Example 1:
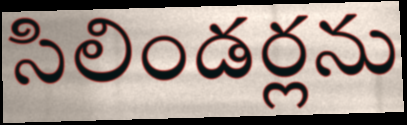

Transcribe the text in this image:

సిలిండర్లను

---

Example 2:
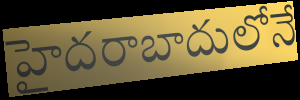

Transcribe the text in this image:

హైదరాబాదులోనే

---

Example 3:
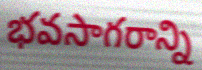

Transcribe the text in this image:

భవసాగరాన్ని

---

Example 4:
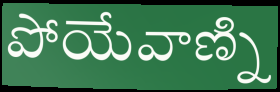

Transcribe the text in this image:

పోయేవాణ్ని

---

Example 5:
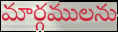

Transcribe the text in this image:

మార్గములను